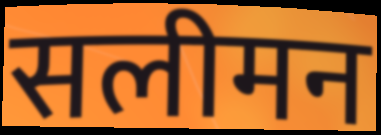
सलीमन